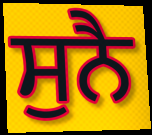
ਸੁਨੈ